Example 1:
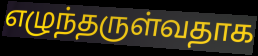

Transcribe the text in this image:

எழுந்தருள்வதாக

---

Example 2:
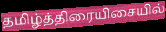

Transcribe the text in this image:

தமிழ்த்திரையிசையில்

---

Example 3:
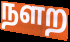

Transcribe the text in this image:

நளற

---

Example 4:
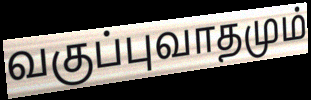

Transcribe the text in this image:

வகுப்புவாதமும்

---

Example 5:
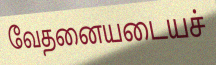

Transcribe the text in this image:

வேதனையடையச்